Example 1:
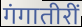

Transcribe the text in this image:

गंगातीरीं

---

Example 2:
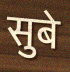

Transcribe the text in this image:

सुबे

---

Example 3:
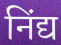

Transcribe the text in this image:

निंद्य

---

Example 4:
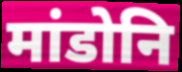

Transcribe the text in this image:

मांडोनि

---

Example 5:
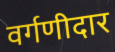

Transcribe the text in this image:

वर्गणीदार